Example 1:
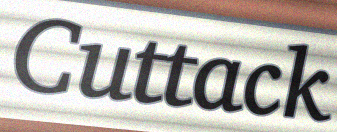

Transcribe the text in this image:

Cuttack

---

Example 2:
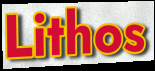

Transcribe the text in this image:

Lithos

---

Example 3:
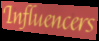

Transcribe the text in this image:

Influencers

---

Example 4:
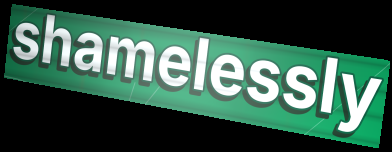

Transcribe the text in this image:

shamelessly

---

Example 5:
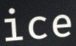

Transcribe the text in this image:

ice